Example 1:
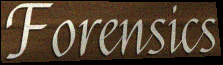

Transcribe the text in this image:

Forensics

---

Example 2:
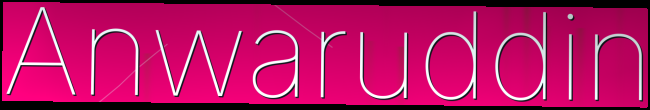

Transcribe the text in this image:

Anwaruddin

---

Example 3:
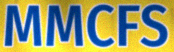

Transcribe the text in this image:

MMCFS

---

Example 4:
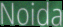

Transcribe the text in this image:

Noida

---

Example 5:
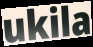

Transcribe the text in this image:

ukila